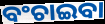
ବଂଚାଇବା